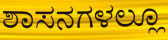
ಶಾಸನಗಳಲ್ಲೂ